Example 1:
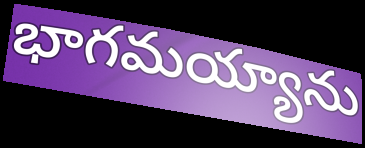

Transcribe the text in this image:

భాగమయ్యాను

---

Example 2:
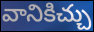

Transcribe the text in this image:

వానికిచ్చు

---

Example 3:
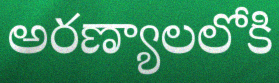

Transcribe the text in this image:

అరణ్యాలలోకి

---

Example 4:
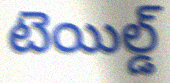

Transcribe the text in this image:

టెయిల్డ్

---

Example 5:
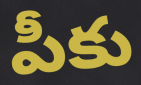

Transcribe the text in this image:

పీకు